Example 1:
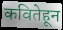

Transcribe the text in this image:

कवितेहून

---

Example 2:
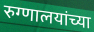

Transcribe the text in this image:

रुग्णालयांच्या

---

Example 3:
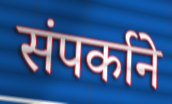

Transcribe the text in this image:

संपर्काने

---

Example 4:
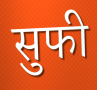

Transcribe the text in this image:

सुफी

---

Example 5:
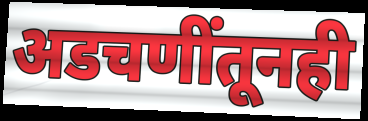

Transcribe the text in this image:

अडचणींतूनही